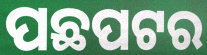
ପଛପଟର